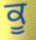
ਕੂ